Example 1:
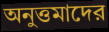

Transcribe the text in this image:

অনুত্তমাদের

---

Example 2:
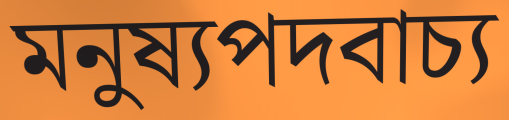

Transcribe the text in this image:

মনুষ্যপদবাচ্য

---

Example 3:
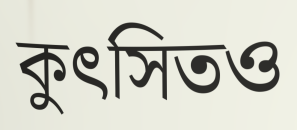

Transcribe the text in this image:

কুৎসিতও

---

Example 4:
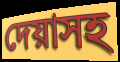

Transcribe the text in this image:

দেয়াসহ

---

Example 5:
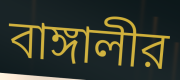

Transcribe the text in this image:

বাঙ্গালীর